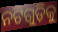
ନଟିଗୁଡ଼ିକୁ